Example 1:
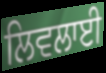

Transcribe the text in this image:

ਲਿਵਲਾਈ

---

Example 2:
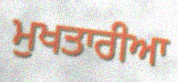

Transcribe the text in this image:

ਮੁਖਤਾਰੀਆ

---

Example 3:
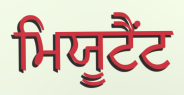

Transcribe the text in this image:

ਮਿਯੂਟੈਂਟ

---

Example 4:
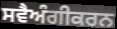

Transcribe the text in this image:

ਸਵੈਅੰਗੀਕਰਨ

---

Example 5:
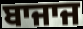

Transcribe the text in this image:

ਬਾਜਾਜ